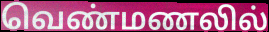
வெண்மணலில்